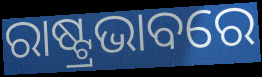
ରାଷ୍ଟ୍ରଭାବରେ